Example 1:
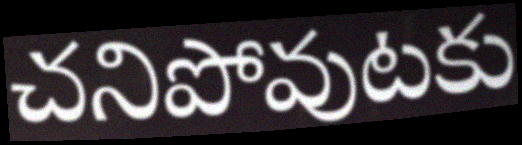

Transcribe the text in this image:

చనిపోవుటకు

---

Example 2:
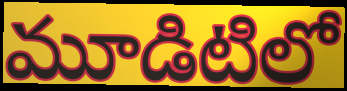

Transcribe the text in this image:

మూడిటిలో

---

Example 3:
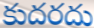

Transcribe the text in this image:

కుదరదు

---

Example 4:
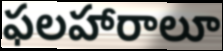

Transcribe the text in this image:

ఫలహారాలూ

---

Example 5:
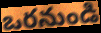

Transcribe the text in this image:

ఒరనుండి